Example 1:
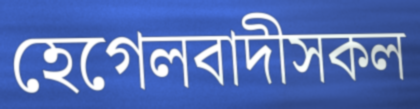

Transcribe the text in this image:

হেগেলবাদীসকল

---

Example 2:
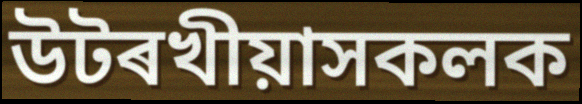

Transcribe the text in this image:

উটৰখীয়াসকলক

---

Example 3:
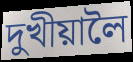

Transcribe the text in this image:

দুখীয়ালৈ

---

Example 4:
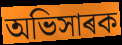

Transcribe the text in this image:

অভিসাৰক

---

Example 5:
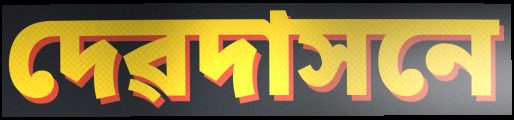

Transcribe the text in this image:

দেৱদাসনে